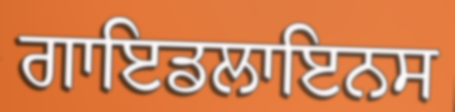
ਗਾਇਡਲਾਇਨਸ